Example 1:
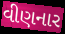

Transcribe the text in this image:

વીણનાર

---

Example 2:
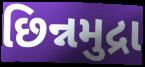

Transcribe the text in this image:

છિન્નમુદ્રા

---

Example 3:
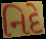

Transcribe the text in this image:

નિદે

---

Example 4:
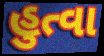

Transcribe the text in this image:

હુત્વા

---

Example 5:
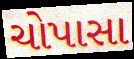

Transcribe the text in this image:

ચોપાસા